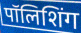
पॉलिशिंग